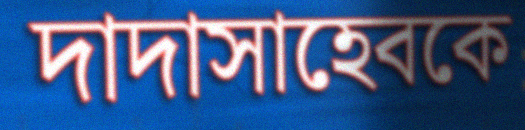
দাদাসাহেবকে